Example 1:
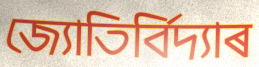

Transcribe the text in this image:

জ্যোতিৰ্বিদ্যাৰ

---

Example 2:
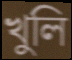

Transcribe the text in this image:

খুলি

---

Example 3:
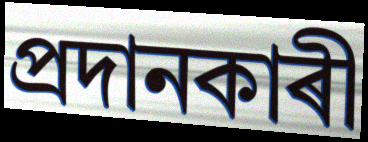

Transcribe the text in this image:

প্ৰদানকাৰী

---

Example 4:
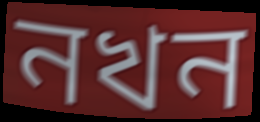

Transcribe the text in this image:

নখন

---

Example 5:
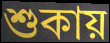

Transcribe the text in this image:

শুকায়